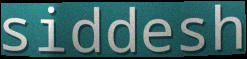
siddesh